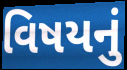
વિષયનું